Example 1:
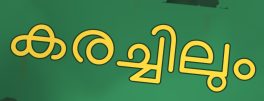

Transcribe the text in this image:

കരച്ചിലും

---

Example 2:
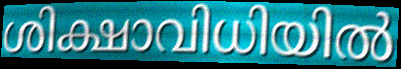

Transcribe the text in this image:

ശിക്ഷാവിധിയിൽ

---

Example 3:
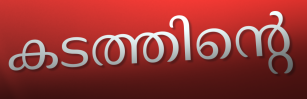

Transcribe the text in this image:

കടത്തിന്റെ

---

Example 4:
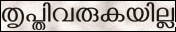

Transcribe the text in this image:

തൃപ്തിവരുകയില്ല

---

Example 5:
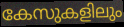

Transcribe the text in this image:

കേസുകളിലും